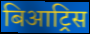
बिआट्रिस